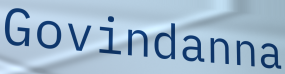
Govindanna